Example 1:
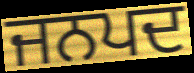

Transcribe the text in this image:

ਜਨਪਦ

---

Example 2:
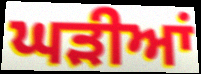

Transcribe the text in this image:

ਘੜੀਆਂ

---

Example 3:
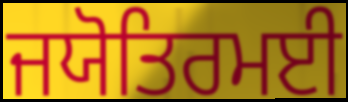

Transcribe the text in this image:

ਜਯੋਤਿਰਮਈ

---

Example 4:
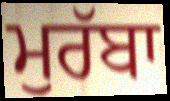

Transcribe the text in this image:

ਮੁਰੱਬਾ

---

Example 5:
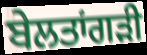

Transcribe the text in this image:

ਬੇਲਤਾਂਗੜੀ